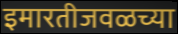
इमारतीजवळच्या